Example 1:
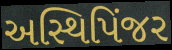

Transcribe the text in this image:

અસ્થિપિંજર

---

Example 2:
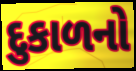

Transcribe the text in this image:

દુકાળનો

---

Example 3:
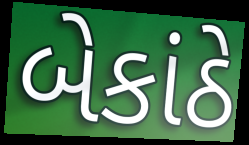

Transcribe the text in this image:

બેકાંઠે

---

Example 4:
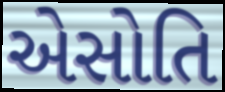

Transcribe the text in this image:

એસોતિ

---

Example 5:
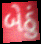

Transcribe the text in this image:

બેઠું